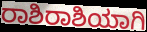
ರಾಶಿರಾಶಿಯಾಗಿ